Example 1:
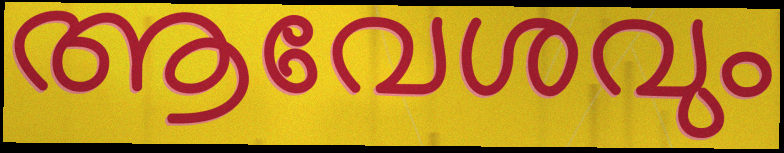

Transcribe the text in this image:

ആവേശവും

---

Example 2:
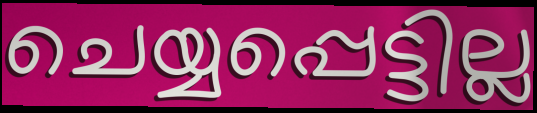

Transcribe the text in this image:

ചെയ്യപ്പെട്ടില്ല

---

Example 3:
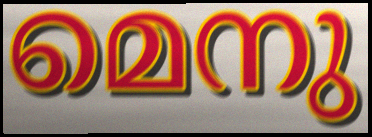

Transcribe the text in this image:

മെനു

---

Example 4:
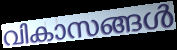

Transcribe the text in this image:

വികാസങ്ങൾ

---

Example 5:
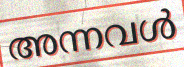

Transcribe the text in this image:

അന്നവൾ